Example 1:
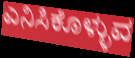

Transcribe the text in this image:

ಎನಿಸಿಕೊಳ್ಳುವ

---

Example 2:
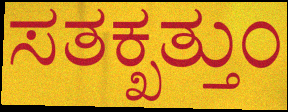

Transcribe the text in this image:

ಸತಕ್ಖತ್ತುಂ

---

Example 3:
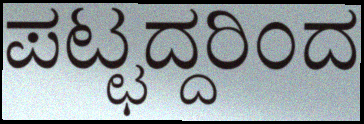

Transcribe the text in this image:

ಪಟ್ಟದ್ದರಿಂದ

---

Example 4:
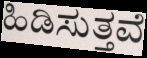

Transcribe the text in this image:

ಹಿಡಿಸುತ್ತವೆ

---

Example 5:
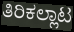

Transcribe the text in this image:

ತಿರಿಕಲ್ಲಾಟ